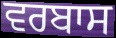
ਵਰਬਾਸ